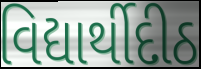
વિદ્યાર્થીદીઠ